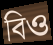
বিও